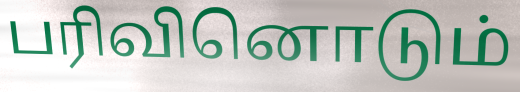
பரிவினொடும்